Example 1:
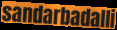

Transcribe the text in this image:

sandarbadalli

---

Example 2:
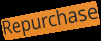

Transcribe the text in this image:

Repurchase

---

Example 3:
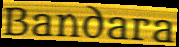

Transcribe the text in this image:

Bandara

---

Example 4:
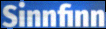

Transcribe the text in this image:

Sinnfinn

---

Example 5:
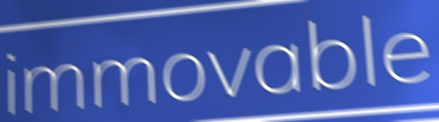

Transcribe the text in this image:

immovable